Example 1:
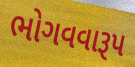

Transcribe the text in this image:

ભોગવવારૂપ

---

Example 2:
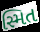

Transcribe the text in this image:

સ્મિત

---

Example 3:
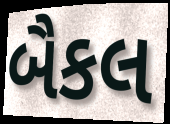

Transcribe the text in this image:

બૈકલ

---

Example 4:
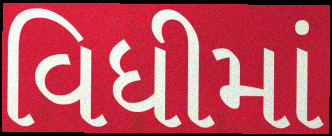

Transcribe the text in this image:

વિધીમાં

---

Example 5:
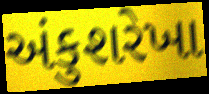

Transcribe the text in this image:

અંકુશરેખા